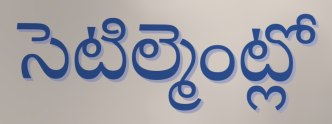
సెటిల్మెంట్లో